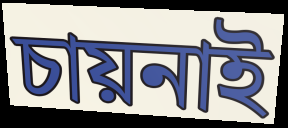
চায়নাই